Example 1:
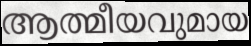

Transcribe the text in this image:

ആത്മീയവുമായ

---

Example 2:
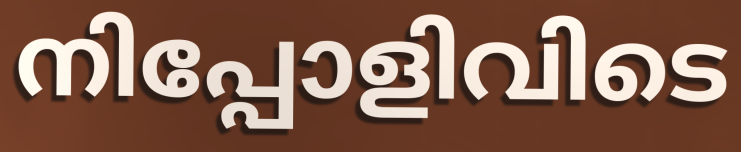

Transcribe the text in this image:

നിപ്പോളിവിടെ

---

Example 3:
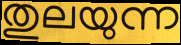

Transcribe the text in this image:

തുലയുന്ന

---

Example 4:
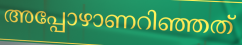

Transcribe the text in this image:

അപ്പോഴാണറിഞ്ഞത്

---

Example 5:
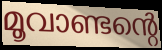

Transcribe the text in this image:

മൂവാണ്ടന്റെ